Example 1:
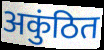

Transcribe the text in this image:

अकुंठित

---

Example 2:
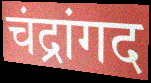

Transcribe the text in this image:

चंद्रांगद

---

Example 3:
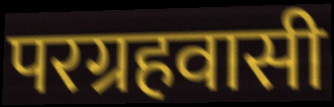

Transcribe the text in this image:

परग्रहवासी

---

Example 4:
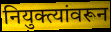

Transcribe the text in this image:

नियुक्त्यांवरून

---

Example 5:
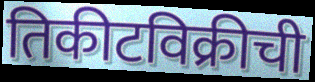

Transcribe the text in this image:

तिकीटविक्रीची